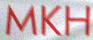
MKH